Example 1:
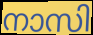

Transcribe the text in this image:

നാസി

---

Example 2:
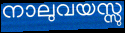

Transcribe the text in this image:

നാലുവയസ്സു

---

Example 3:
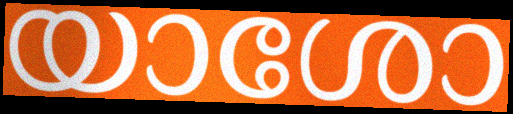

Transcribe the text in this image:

യാശോ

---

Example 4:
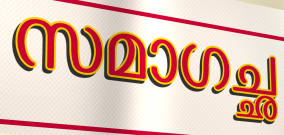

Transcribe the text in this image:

സമാഗച്ഛ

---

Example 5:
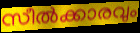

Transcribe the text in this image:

സീൽക്കാരവും